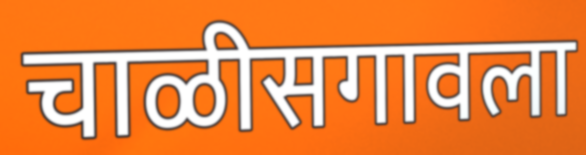
चाळीसगावला